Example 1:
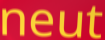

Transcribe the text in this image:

neut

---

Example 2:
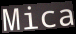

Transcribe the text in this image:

Mica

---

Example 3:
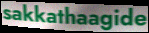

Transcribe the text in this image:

sakkathaagide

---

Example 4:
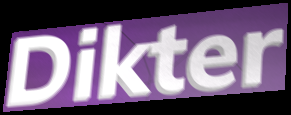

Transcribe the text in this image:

Dikter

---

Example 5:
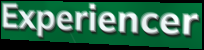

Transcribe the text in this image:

Experiencer